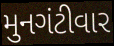
મુનગંટીવાર